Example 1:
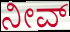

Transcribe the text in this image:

ನೀವ್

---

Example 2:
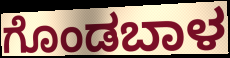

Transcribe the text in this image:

ಗೊಂಡಬಾಳ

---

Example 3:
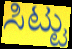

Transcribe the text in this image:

ಸಿಟ್ಟು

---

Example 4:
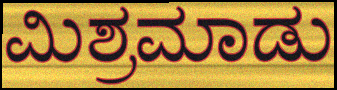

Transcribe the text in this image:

ಮಿಶ್ರಮಾಡು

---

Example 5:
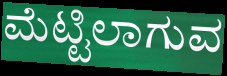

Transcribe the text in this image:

ಮೆಟ್ಟಿಲಾಗುವ